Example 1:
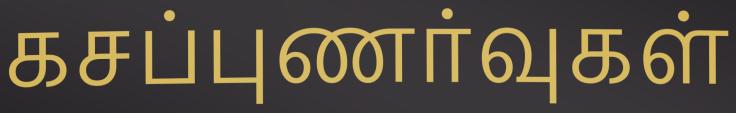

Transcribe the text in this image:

கசப்புணர்வுகள்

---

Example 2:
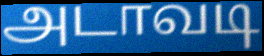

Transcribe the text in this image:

அடாவடி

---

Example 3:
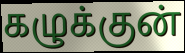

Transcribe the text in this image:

கழுக்குன்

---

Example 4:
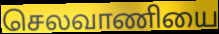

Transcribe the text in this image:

செலவாணியை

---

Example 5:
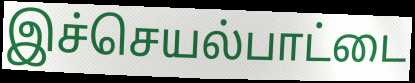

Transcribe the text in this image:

இச்செயல்பாட்டை